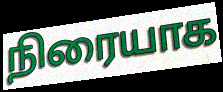
நிரையாக